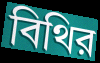
বিথির